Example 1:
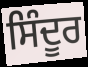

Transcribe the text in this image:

ਸਿੰਦੂਰ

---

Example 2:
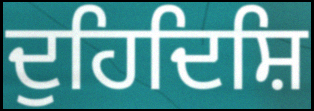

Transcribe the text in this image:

ਦੁਹਿਦਿਸ਼ਿ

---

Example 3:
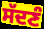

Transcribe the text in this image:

ਸੱਦਣੰ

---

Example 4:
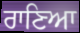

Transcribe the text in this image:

ਰਾਣਿਆ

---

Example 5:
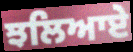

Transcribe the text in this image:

ਝਲਿਆਏ